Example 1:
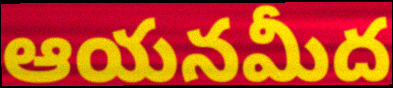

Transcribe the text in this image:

ఆయనమీద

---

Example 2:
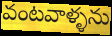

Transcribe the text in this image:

వంటవాళ్ళను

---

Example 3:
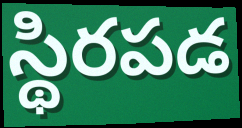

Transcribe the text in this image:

స్థిరపడ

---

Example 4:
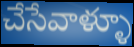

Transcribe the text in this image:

చేసేవాళ్ళూ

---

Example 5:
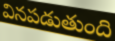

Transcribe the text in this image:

వినపడుతుంది